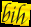
bih